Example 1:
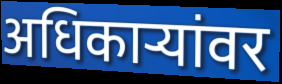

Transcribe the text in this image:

अधिकाऱ्यांवर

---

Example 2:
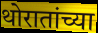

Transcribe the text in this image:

थोरातांच्या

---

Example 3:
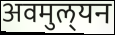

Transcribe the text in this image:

अवमुल्यन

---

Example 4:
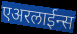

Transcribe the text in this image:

एअरलाईन्स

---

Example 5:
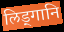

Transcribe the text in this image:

लिड्गानि